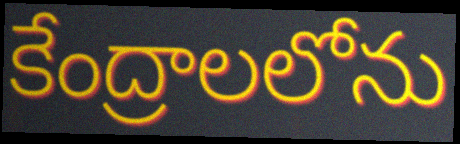
కేంద్రాలలోను